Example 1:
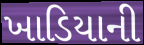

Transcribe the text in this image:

ખાડિયાની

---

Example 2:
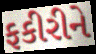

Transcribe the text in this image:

ફકીરીને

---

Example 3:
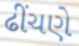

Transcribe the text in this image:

ઢીંચણે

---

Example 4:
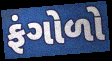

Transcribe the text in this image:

ફંગોળો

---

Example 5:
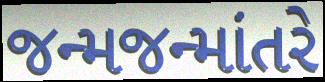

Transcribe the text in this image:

જન્મજન્માંતરે